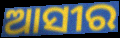
ଆସୀର